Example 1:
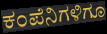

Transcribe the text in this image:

ಕಂಪೆನಿಗಳಿಗೂ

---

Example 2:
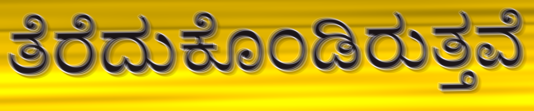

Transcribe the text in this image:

ತೆರೆದುಕೊಂಡಿರುತ್ತವೆ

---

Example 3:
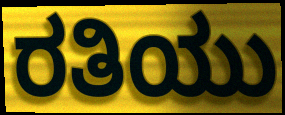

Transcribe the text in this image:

ರತಿಯು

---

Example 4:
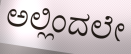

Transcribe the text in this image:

ಅಲ್ಲಿಂದಲೇ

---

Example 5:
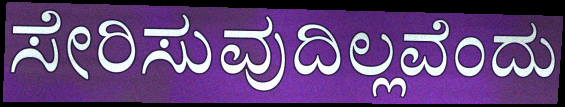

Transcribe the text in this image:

ಸೇರಿಸುವುದಿಲ್ಲವೆಂದು